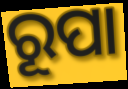
ରୂପା